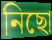
নিছো